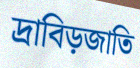
দ্রাবিড়জাতি